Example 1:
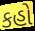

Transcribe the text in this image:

કહો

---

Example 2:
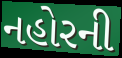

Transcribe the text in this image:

નહોરની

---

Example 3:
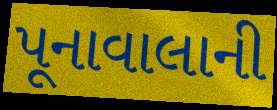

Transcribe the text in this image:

પૂનાવાલાની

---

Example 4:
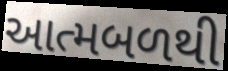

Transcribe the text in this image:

આત્મબળથી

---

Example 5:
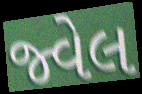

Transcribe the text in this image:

જ્વેલ